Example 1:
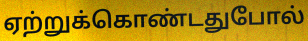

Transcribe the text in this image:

ஏற்றுக்கொண்டதுபோல்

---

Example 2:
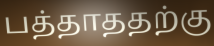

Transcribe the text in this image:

பத்தாததற்கு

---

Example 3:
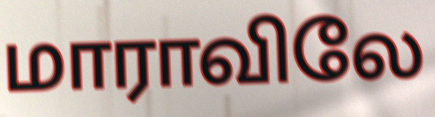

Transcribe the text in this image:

மாராவிலே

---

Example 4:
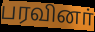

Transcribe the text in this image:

பரவினர்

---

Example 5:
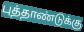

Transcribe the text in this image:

புத்தாண்டுக்கு